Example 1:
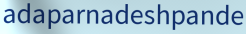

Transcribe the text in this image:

adaparnadeshpande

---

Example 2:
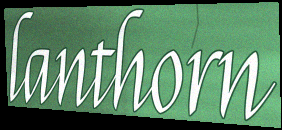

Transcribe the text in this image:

lanthorn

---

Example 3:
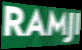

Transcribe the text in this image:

RAMJI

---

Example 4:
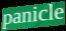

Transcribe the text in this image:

panicle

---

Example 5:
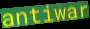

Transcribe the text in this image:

antiwar